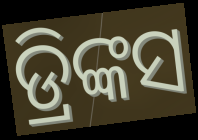
ଡ୍ରିଙ୍କସ